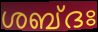
ശബ്ദഃ